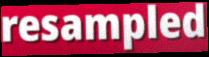
resampled